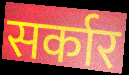
सर्कार